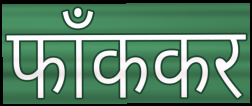
फाँककर